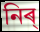
নিৰ্